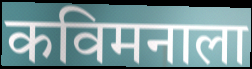
कविमनाला